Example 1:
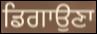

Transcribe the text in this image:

ਡਿਗਾਉਣਾ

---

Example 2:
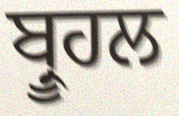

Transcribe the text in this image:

ਬ੍ਰੂਹਲ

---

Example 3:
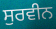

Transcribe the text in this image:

ਸੁਰਵੀਨ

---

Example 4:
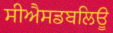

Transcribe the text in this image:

ਸੀਐਸਡਬਲਿਊ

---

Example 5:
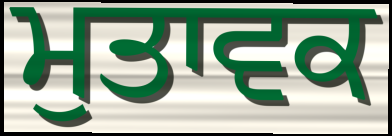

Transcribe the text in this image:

ਮੁਤਾਵਕ